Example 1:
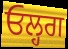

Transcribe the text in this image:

ਓਲ੍ਹਗ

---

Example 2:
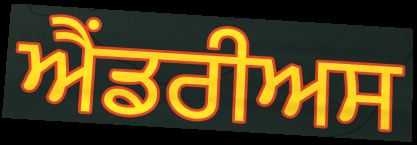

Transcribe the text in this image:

ਐਂਡਰੀਅਸ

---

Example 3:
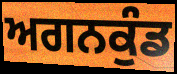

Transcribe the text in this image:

ਅਗਨਕੁੰਡ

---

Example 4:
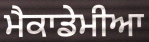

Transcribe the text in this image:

ਮੈਕਾਡੇਮੀਆ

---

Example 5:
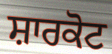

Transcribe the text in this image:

ਸ਼ਾਰਕੋਟ